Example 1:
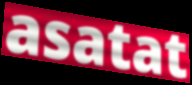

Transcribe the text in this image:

asatat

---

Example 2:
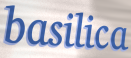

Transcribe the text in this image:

basilica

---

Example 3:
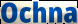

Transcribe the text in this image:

Ochna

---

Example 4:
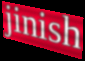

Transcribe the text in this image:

jinish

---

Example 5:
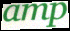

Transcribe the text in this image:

amp